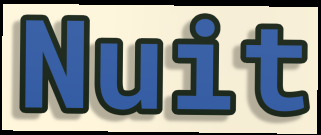
Nuit